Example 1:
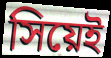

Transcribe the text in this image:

সিয়েই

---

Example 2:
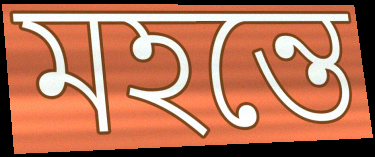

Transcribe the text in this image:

মহন্তে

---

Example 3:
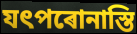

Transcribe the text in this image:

যৎপৰোনাস্তি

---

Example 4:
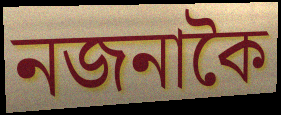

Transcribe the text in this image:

নজনাকৈ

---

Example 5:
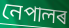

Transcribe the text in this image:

নেপালৰ